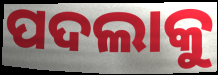
ପଦଲାକୁ